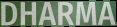
DHARMA